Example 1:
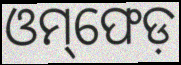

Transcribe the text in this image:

ଓମ୍‌ଫେଡ଼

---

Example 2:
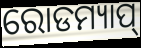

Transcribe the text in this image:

ରୋଡମ୍ୟାପ୍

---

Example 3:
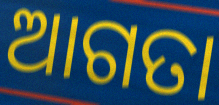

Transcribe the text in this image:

ଆଗତା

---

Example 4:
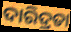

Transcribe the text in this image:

ଦାରିଦ୍ରତା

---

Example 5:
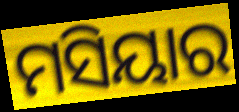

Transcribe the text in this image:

ମସିୟାର